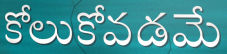
కోలుకోవడమే